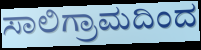
ಸಾಲಿಗ್ರಾಮದಿಂದ